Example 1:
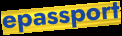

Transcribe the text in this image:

epassport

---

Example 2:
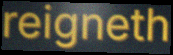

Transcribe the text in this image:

reigneth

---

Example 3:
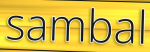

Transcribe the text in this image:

sambal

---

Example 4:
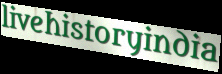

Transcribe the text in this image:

livehistoryindia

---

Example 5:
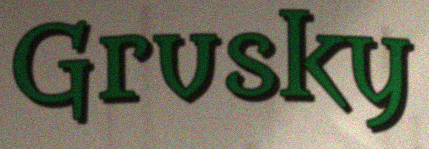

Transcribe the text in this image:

Grusky